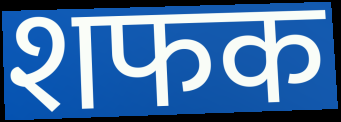
शफक